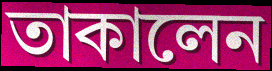
তাকালেন